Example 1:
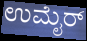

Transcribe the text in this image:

ಉಮೈರ್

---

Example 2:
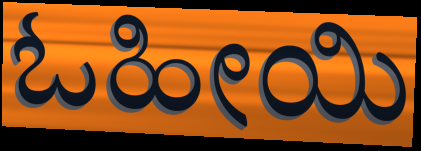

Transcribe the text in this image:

ಓಹೀಯಿ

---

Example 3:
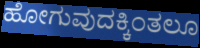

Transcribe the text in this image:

ಹೋಗುವುದಕ್ಕಿಂತಲೂ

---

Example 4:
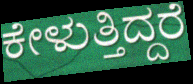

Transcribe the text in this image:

ಕೇಳುತ್ತಿದ್ದರೆ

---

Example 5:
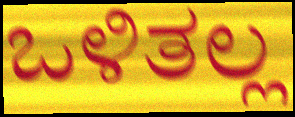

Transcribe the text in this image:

ಒಳಿತಲ್ಲ